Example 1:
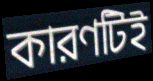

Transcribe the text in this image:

কারণটিই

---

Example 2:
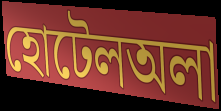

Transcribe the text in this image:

হোটেলঅলা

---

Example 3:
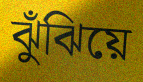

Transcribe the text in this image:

ঝুঁঝিয়ে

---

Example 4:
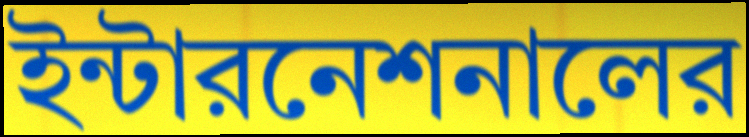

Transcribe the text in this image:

ইন্টারনেশনালের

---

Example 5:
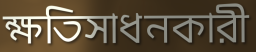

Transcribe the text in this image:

ক্ষতিসাধনকারী